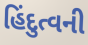
હિંદુત્વની